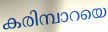
കരിമ്പാറയെ